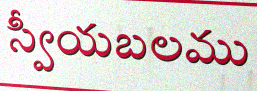
స్వీయబలము